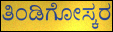
ತಿಂಡಿಗೋಸ್ಕರ